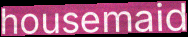
housemaid